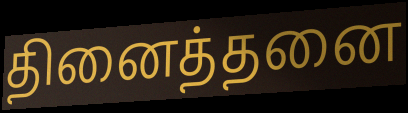
தினைத்தனை